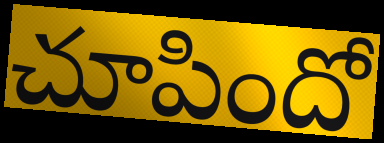
చూపిందో